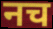
नच